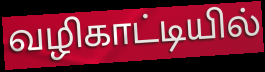
வழிகாட்டியில்